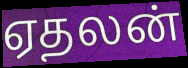
ஏதலன்